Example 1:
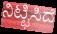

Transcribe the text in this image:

ನಿಟ್ಟಿಸಿದೆ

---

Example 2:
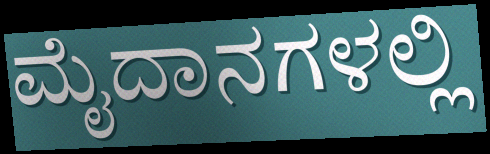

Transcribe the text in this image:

ಮೈದಾನಗಳಲ್ಲಿ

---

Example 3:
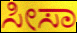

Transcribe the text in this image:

ಸೀಸಾ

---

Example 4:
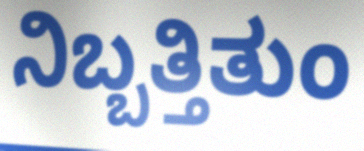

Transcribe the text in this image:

ನಿಬ್ಬತ್ತಿತುಂ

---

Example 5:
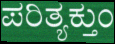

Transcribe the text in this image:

ಪರಿತ್ಯಕ್ತುಂ